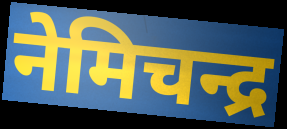
नेमिचन्द्र